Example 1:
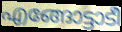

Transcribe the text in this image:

എങ്ങോട്ടാടീ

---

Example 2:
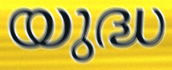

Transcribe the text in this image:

യുദ്ധ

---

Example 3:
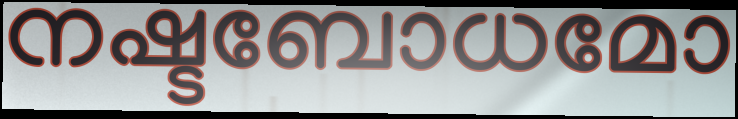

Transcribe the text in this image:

നഷ്ടബോധമോ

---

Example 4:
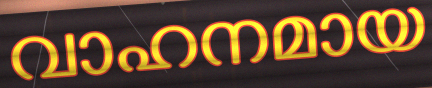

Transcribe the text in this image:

വാഹനമായ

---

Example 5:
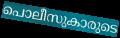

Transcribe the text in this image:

പൊലീസുകാരുടെ